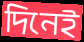
দিনেই